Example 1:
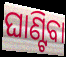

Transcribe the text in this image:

ଘାଣ୍ଟିବା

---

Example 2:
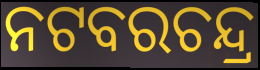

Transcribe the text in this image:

ନଟବରଚନ୍ଦ୍ର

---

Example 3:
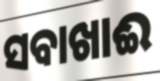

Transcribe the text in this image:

ସବାଖାଈ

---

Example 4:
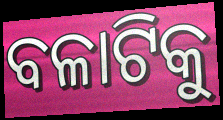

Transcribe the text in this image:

ବଳାଟିକୁ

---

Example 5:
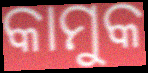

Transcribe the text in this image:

କାମୁକ